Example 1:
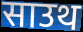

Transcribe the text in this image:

साउथ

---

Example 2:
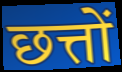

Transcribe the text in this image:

छत्तों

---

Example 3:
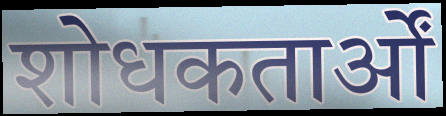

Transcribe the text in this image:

शोधकतार्ओं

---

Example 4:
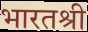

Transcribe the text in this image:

भारतश्री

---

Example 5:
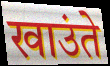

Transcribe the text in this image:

खाउंते